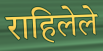
राहिलेले